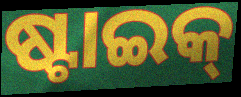
ଷ୍ଟାଇକ୍